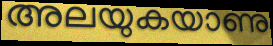
അലയുകയാണു